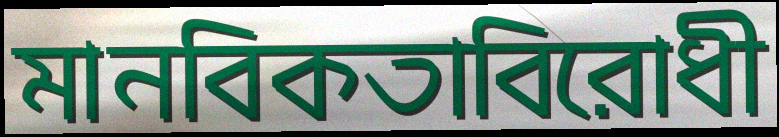
মানবিকতাবিরোধী